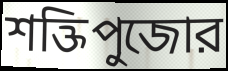
শক্তিপুজোর